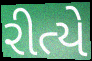
રીત્યે